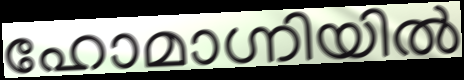
ഹോമാഗ്നിയിൽ